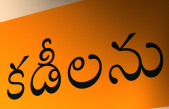
కడీలను